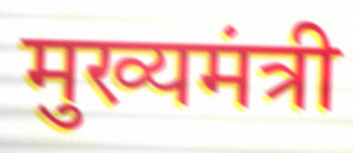
मुख्यमंत्री